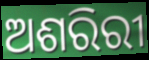
ଅଶରିରୀ